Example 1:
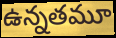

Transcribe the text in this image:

ఉన్నతమూ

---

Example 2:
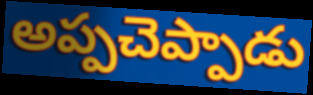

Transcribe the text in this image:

అప్పచెప్పాడు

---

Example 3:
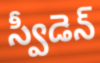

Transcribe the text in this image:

స్వీడెన్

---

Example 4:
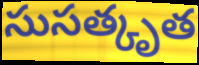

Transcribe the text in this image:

సుసత్కృత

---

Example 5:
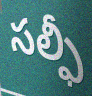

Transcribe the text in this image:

సల్ఫీ